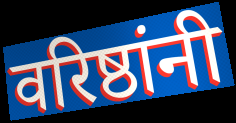
वरिष्ठांनी